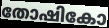
തോഷികോ